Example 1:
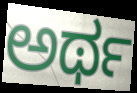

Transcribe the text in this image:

ಅರ್ಥ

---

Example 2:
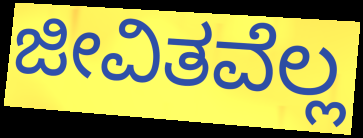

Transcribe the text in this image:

ಜೀವಿತವೆಲ್ಲ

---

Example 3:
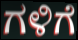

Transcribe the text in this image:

ಗಳಿಗೆ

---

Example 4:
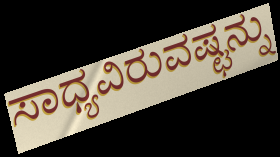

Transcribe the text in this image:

ಸಾಧ್ಯವಿರುವಷ್ಟನ್ನು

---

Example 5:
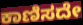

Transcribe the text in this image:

ಕಾಣಿಸದೇ